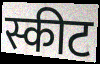
स्‍कीट